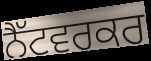
ਨੈੱਟਵਰਕਰ